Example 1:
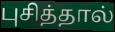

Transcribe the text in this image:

புசித்தால்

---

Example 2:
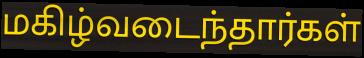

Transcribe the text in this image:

மகிழ்வடைந்தார்கள்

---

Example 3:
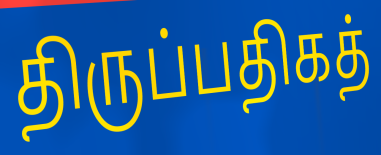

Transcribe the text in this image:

திருப்பதிகத்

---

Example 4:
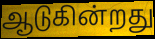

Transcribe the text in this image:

ஆடுகின்றது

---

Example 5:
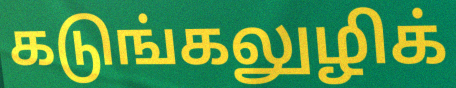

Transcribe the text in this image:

கடுங்கலுழிக்